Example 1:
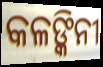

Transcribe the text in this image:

କଳଙ୍କିନୀ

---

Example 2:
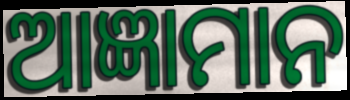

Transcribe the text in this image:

ଆଜ୍ଞାମାନ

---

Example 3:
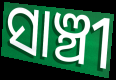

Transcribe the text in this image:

ସାଞ୍ଚୀ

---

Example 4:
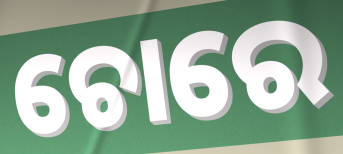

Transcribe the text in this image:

ଚୋରେ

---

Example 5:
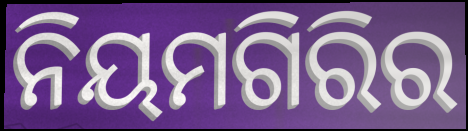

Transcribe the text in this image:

ନିୟମଗିରିର